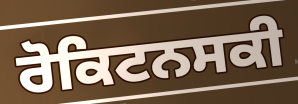
ਰੋਕਿਟਨਸਕੀ